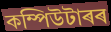
কম্পিউটাৰৰ